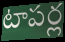
టాపర్ల